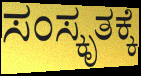
ಸಂಸ್ಕೃತಕ್ಕೆ